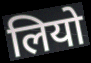
लियो